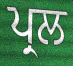
ਪ੍ਰਲ